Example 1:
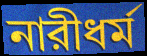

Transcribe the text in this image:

নারীধর্ম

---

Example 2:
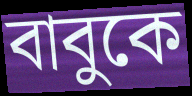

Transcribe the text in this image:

বাবুকে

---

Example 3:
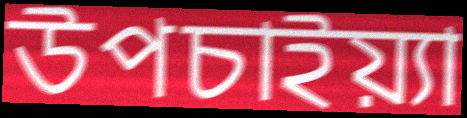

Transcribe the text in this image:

উপচাইয়্যা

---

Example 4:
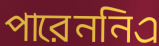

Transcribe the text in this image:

পারেননিএ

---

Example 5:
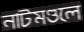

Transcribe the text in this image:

নাটমণ্ডলে